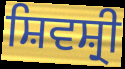
ਸ਼ਿਵਸ਼੍ਰੀ